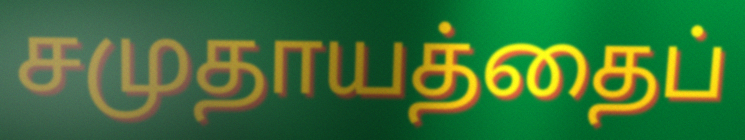
சமுதாயத்தைப்